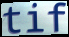
tif